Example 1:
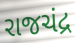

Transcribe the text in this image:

રાજચંદ્ર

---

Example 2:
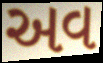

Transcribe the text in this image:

અવ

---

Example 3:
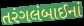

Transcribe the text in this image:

તરંગલંબાઈનાં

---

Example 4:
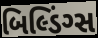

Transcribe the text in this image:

બિલ્ડિંગ્સ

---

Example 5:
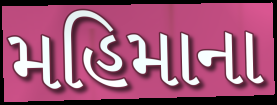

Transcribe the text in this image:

મહિમાના